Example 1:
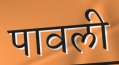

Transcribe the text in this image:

पावली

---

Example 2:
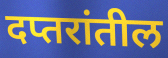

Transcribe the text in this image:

दप्तरांतील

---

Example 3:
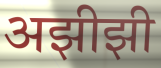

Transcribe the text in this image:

अझीझी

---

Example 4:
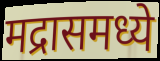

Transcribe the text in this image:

मद्रासमध्ये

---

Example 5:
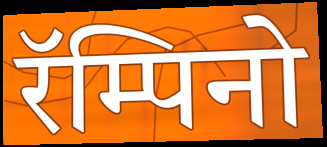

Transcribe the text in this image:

रॅम्पिनो